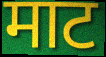
माट